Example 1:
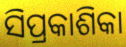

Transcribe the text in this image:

ସିପ୍ରକାଶିକା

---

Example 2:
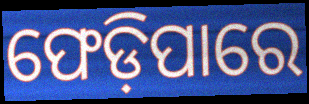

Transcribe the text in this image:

ଫେଡ଼ିପାରେ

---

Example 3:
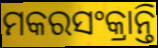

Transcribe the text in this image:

ମକରସଂକ୍ରାନ୍ତି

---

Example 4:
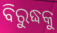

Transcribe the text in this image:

ବିରୁଦ୍ଧକୁ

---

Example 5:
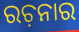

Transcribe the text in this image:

ରଚ଼ନାର